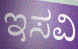
ಇಸವಿ